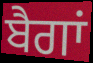
ਬੈਗਾਂ